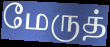
மேருத்